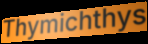
Thymichthys